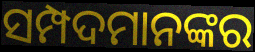
ସମ୍ପଦମାନଙ୍କର